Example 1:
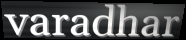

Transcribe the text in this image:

varadhar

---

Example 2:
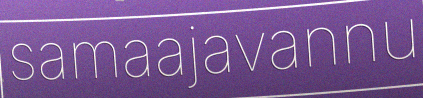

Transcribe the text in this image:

samaajavannu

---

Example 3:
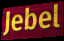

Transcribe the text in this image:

Jebel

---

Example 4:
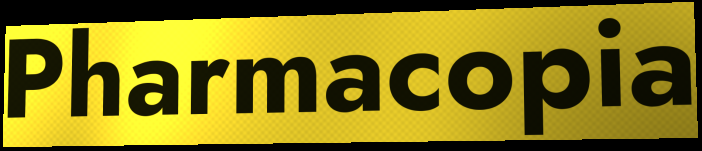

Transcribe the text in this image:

Pharmacopia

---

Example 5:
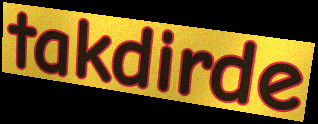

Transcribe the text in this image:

takdirde